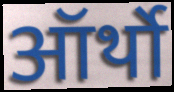
ऑर्थो